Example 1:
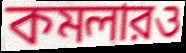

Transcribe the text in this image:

কমলারও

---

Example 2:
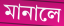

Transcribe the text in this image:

মানালে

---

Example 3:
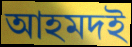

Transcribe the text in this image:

আহমদই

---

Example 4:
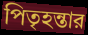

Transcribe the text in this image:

পিতৃহন্তার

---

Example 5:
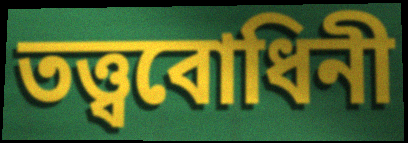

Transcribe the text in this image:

তত্ত্ববোধিনী